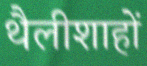
थैलीशाहों